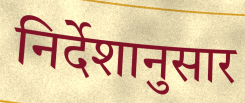
निर्देशानुसार